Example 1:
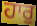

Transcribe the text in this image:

ਹਾਰੁ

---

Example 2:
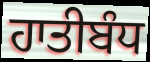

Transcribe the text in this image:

ਹਾਤੀਬੰਧ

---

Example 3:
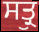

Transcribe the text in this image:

ਸਤ੍ਰੁ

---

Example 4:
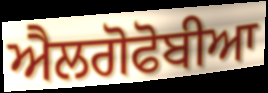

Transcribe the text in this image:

ਐਲਗੋਫੋਬੀਆ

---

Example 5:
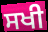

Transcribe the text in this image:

ਸਖੀ